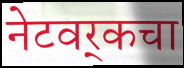
नेटवर्कचा